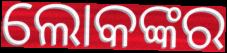
ଲୋକଙ୍କର